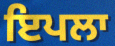
ਇਪਲਾ